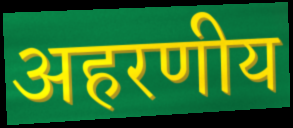
अहरणीय